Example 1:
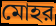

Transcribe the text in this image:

মোহর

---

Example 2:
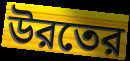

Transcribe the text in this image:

উরতের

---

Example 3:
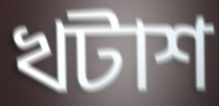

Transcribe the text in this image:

খটাশ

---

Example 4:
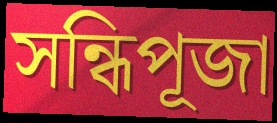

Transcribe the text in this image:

সন্ধিপূজা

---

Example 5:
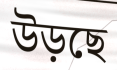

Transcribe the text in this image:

উড়ছে